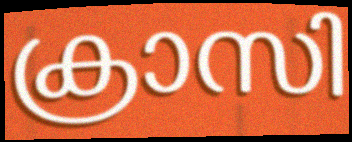
ക്രാസി